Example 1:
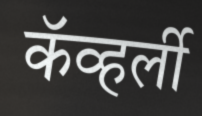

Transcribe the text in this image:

कॅव्हर्ली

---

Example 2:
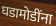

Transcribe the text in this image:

घडामोडींना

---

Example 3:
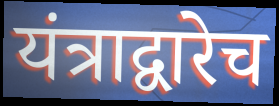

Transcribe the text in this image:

यंत्राद्वारेच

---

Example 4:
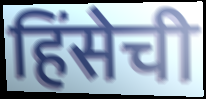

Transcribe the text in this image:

हिंसेची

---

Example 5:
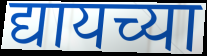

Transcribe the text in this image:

द्यायच्या